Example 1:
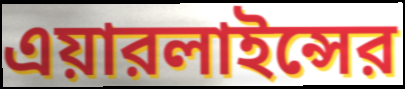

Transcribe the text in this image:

এয়ারলাইন্সের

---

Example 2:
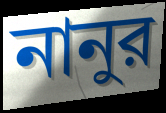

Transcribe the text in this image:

নানুর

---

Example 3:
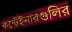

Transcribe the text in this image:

কন্টেইনারগুলির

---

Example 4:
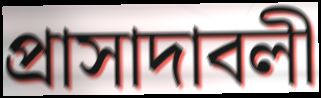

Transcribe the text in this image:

প্রাসাদাবলী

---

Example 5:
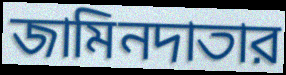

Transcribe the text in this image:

জামিনদাতার